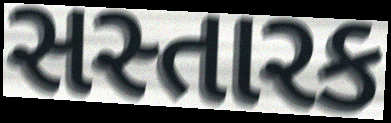
સસ્તારક